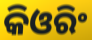
କିଓରିଂ